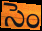
సెం